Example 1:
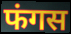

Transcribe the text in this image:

फंगस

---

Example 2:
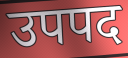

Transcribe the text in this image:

उपपद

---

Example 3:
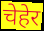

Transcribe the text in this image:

चेहेर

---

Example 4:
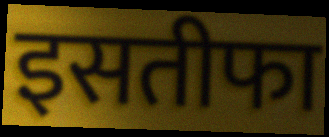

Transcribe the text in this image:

इसतीफा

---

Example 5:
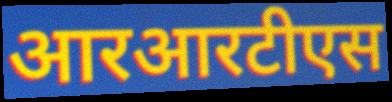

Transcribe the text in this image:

आरआरटीएस